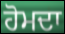
ਹੋਮਦਾ